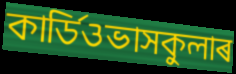
কাৰ্ডিওভাসকুলাৰ